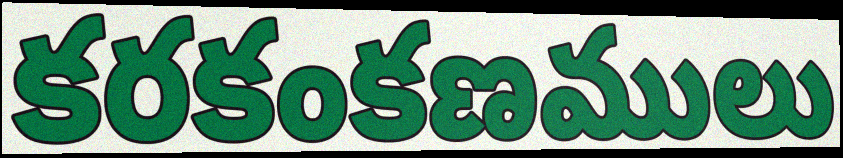
కరకంకణములు